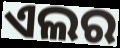
ଏଲର